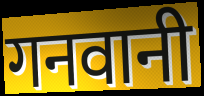
गनवानी